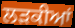
ਲੜਕੀਆਂ